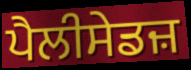
ਪੈਲੀਸੇਡਜ਼